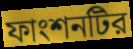
ফাংশনটির